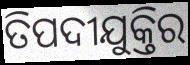
ତିପଦୀଯୁକ୍ତିର